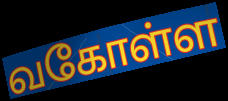
வகோள்ள